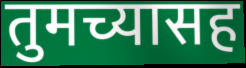
तुमच्यासह